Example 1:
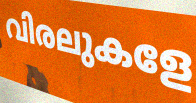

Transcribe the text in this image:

വിരലുകളേ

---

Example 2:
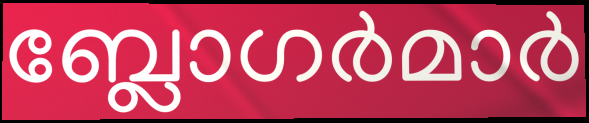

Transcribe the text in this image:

ബ്ലോഗർമാർ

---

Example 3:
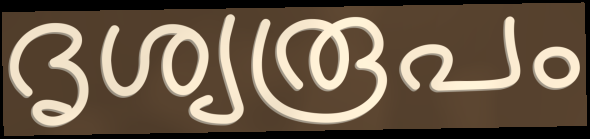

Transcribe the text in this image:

ദൃശ്യരൂപം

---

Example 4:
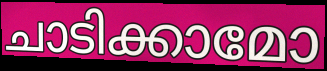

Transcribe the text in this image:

ചാടിക്കാമോ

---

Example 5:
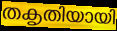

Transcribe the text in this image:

തകൃതിയായി